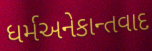
ધર્મઅનેકાન્તવાદ